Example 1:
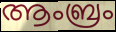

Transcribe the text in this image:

ആംബ്രം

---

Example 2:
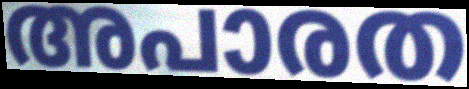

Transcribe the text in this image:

അപാരത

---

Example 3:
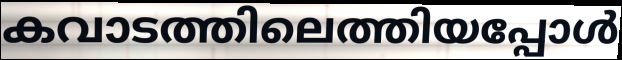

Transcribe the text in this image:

കവാടത്തിലെത്തിയപ്പോൾ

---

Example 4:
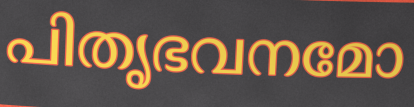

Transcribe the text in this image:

പിതൃഭവനമോ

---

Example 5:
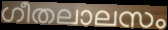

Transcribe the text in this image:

ഗീതലാലസം